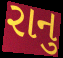
રાનુ